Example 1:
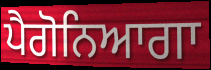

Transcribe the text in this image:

ਪੈਗੋਨਿਆਗਾ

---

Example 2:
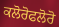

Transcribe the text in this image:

ਕਲੋਰੋਫਲੋਰੋ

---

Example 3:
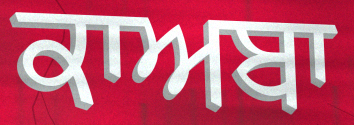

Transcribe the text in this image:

ਕਾਅਬਾ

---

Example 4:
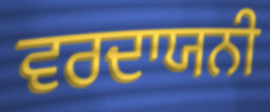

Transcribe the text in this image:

ਵਰਦਾਯਨੀ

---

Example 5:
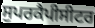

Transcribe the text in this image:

ਸੁਪਰਕੈਪੀਸੀਟਰ